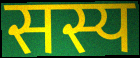
सस्य